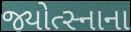
જ્યોત્સ્નાના